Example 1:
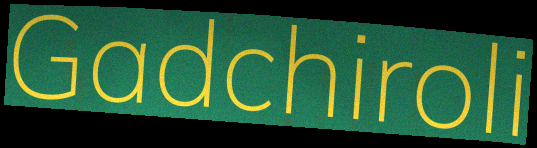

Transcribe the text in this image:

Gadchiroli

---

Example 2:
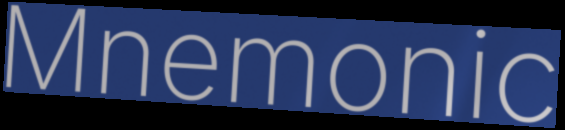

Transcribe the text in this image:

Mnemonic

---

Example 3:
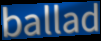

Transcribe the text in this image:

ballad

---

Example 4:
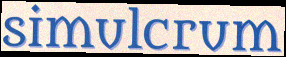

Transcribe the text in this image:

simulcrum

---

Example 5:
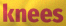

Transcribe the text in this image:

knees